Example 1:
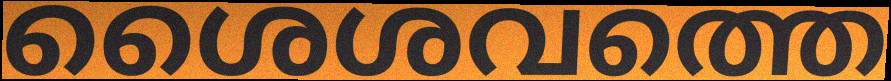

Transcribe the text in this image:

ശൈശവത്തെ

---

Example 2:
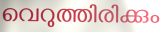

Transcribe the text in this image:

വെറുത്തിരിക്കും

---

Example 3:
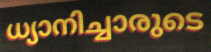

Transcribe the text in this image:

ധ്യാനിച്ചാരുടെ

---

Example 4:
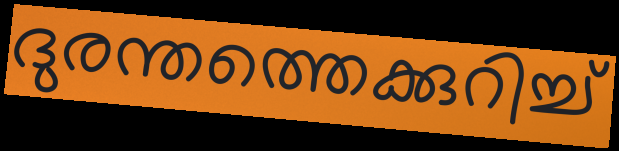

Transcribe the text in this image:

ദുരന്തത്തെക്കുറിച്ച്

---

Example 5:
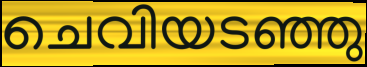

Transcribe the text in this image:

ചെവിയടഞ്ഞു